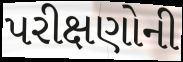
પરીક્ષણોની